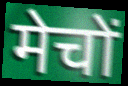
मेचों